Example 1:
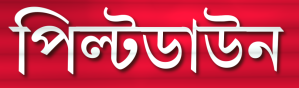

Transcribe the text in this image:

পিল্টডাউন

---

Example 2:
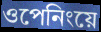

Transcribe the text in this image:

ওপেনিংয়ে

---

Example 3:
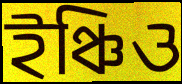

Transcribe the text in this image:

ইঞ্চিও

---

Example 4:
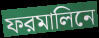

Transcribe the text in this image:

ফরমালিনে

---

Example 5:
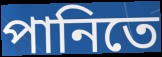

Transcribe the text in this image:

পানিতে